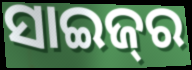
ସାଇଜ୍‌ର